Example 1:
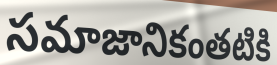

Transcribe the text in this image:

సమాజానికంతటికి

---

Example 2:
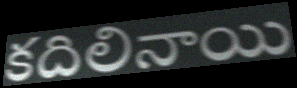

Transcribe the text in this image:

కదిలినాయి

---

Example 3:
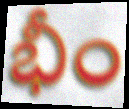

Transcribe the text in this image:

భీం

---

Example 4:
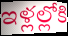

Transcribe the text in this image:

ఇళ్లల్లోకి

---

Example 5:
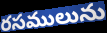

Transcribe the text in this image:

రసములును